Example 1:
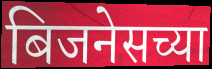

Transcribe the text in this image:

बिजनेसच्या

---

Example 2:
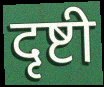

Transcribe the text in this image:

दृष्टी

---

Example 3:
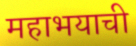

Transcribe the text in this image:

महाभयाची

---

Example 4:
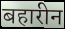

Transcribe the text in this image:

बहारीन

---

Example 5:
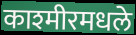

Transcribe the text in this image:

काश्‍मीरमधले